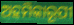
ଅହମିକାରୂପୀ